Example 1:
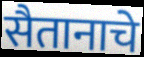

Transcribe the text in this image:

सैतानाचे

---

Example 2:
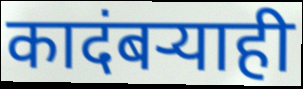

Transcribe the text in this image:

कादंबऱ्याही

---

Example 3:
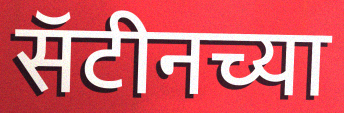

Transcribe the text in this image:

सॅटीनच्या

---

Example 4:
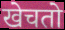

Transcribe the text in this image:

खेचतो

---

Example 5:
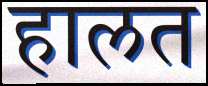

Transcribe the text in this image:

हालत